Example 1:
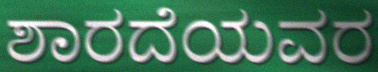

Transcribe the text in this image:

ಶಾರದೆಯವರ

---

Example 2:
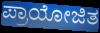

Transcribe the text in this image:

ಪ್ರಾಯೋಜಿತ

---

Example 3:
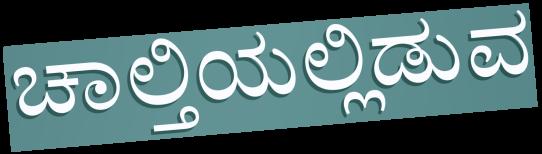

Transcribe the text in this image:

ಚಾಲ್ತಿಯಲ್ಲಿಡುವ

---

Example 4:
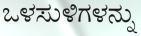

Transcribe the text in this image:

ಒಳಸುಳಿಗಳನ್ನು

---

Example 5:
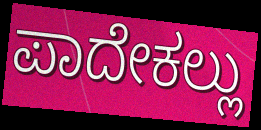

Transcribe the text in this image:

ಪಾದೇಕಲ್ಲು